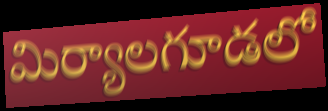
మిర్యాలగూడలో